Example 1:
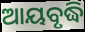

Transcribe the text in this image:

ଆୟବୃଦ୍ଧି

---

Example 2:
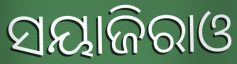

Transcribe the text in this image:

ସୟାଜିରାଓ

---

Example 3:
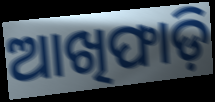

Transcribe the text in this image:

ଆଖିଫାଡ଼ି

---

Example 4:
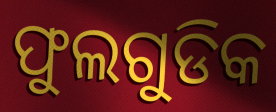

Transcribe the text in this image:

ଫୁଲଗୁଡିକ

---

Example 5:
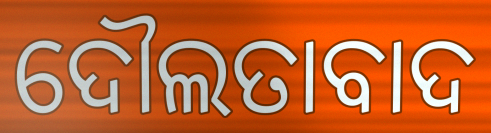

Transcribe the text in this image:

ଦୌଲତାବାଦ